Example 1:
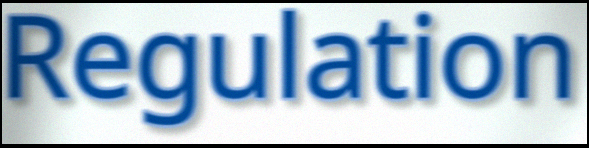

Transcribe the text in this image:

Regulation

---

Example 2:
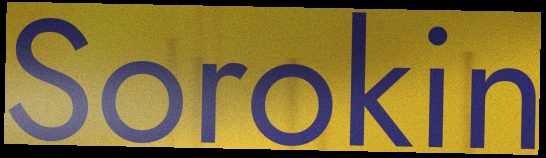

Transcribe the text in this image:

Sorokin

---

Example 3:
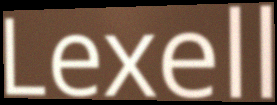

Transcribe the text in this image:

Lexell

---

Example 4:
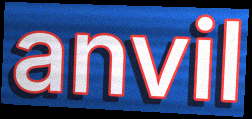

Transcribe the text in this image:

anvil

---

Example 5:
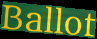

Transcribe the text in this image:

Ballot